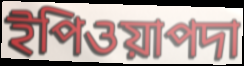
ইপিওয়াপদা